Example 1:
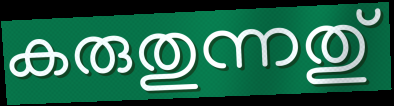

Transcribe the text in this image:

കരുതുന്നതു്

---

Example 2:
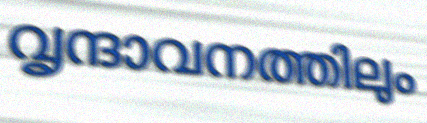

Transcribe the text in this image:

വൃന്ദാവനത്തിലും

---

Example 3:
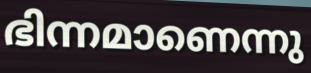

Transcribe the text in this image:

ഭിന്നമാണെന്നു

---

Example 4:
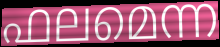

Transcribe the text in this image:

ഫലമെന്ന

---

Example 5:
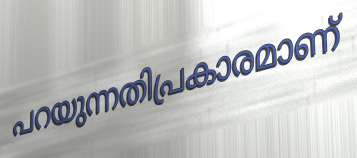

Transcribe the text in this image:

പറയുന്നതിപ്രകാരമാണ്